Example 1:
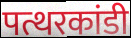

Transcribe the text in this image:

पत्थरकांडी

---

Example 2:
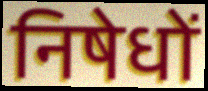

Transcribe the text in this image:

निषेधों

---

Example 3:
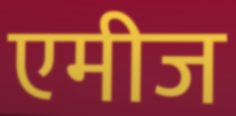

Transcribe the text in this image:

एमीज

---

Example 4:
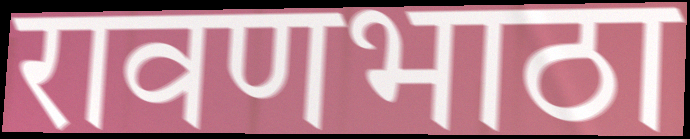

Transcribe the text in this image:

रावणभाठा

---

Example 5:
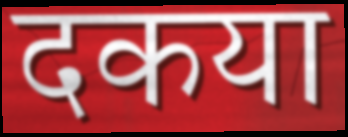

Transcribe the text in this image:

दकया